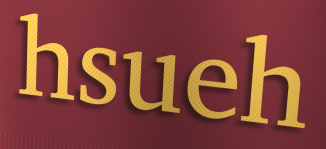
hsueh